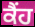
ਕੈਂਹ